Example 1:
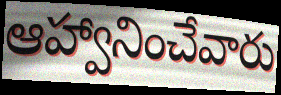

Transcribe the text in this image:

ఆహ్వానించేవారు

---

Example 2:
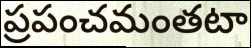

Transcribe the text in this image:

ప్రపంచమంతటా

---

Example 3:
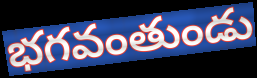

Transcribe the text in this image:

భగవంతుండు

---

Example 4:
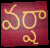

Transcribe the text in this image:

వర్షా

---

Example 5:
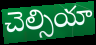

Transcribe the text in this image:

చెల్సియా